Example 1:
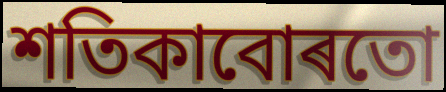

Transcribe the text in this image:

শতিকাবোৰতো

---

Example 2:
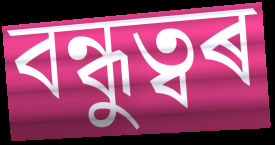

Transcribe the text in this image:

বন্ধুত্বৰ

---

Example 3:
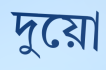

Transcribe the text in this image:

দুয়ো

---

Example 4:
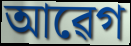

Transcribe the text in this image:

আৱেগ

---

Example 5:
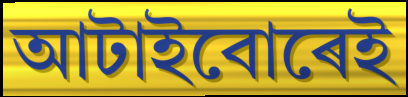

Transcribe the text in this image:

আটাইবোৰেই